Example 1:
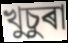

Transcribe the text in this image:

খুচুৰা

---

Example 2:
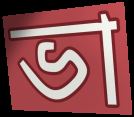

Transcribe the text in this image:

ভা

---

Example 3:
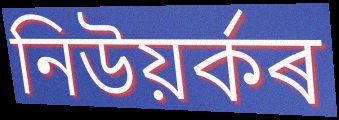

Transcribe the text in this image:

নিউয়ৰ্কৰ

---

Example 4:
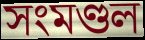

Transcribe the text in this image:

সংমণ্ডল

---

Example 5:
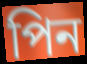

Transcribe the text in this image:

পিন